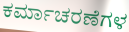
ಕರ್ಮಾಚರಣೆಗಳ